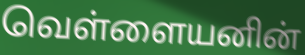
வெள்ளையனின்